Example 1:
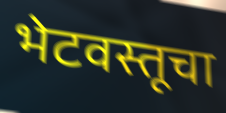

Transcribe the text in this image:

भेटवस्तूचा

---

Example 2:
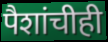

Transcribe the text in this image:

पैशांचीही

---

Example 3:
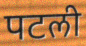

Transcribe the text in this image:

पटली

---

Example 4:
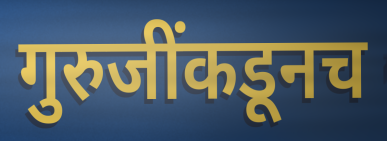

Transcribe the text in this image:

गुरुजींकडूनच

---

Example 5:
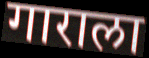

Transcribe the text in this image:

गाराला